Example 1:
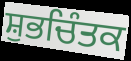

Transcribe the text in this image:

ਸ਼ੁਭਚਿੰਤਕ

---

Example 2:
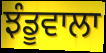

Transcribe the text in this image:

ਝੰਡੂਵਾਲਾ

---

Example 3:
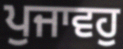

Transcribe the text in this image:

ਪੁਜਾਵਹੁ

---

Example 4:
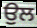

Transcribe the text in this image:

ਉਲ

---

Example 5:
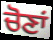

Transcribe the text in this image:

ਚੋਣਾਂ